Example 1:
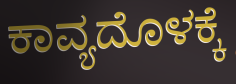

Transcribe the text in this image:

ಕಾವ್ಯದೊಳಕ್ಕೆ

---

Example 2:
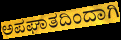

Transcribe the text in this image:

ಅಪಘಾತದಿಂದಾಗಿ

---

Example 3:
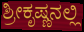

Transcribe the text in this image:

ಶ್ರೀಕೃಷ್ಣನಲ್ಲಿ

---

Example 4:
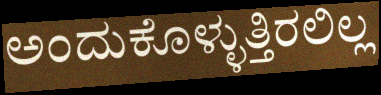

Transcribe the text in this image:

ಅಂದುಕೊಳ್ಳುತ್ತಿರಲಿಲ್ಲ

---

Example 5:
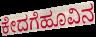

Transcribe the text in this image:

ಕೇದಗೆಹೂವಿನ